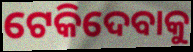
ଟେକିଦେବାକୁ